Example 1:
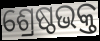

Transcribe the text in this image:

ଶ୍ରେଷ୍ଠଭକ୍ତ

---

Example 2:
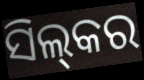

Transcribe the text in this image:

ସିଲ୍‍କର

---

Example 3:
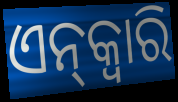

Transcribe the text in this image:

ଏନ୍‌କ୍ୱାରି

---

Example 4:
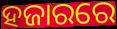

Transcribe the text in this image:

ହଜାରରେ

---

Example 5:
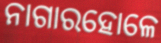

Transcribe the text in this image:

ନାଗାରହୋଳେ